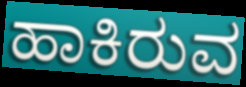
ಹಾಕಿರುವ